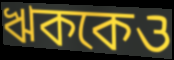
ঋককেও